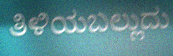
ತಿಳಿಯಬಲ್ಲುದು